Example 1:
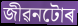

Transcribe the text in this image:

জীৱনটোৰ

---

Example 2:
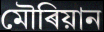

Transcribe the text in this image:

মৌৰিয়ান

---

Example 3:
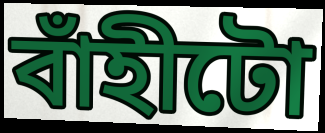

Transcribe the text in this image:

বাঁহীটো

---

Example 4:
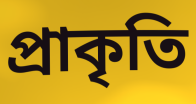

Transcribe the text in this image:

প্ৰাকৃতি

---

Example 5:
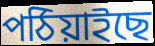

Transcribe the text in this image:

পঠিয়াইছে